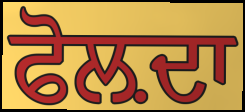
ਫੋਲ਼ਦਾ